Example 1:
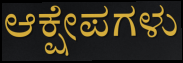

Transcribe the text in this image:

ಆಕ್ಷೇಪಗಳು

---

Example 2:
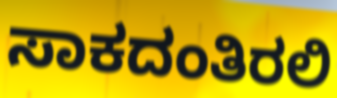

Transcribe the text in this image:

ಸಾಕದಂತಿರಲಿ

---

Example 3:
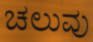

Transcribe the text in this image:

ಚಲುವು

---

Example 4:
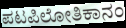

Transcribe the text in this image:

ಪಟಪಿಲೋತಿಕಾನಂ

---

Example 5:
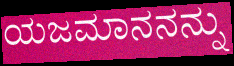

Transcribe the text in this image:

ಯಜಮಾನನನ್ನು